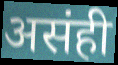
असंही